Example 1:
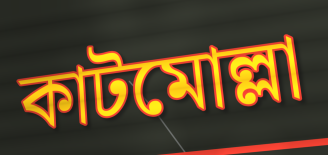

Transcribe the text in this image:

কাটমোল্লা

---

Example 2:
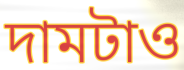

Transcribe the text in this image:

দামটাও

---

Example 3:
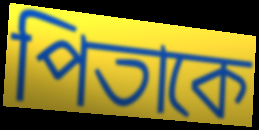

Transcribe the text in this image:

পিতাকে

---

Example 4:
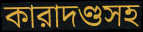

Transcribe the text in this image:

কারাদণ্ডসহ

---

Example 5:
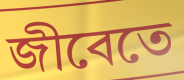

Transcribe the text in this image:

জীবেতে